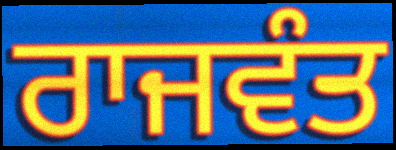
ਰਾਜਵੰਤ